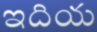
ఇదియ